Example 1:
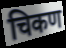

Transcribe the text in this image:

चिकण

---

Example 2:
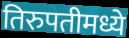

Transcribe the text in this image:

तिरुपतीमध्ये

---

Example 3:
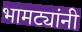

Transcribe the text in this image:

भामट्यांनी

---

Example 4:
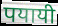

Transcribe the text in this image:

पयायी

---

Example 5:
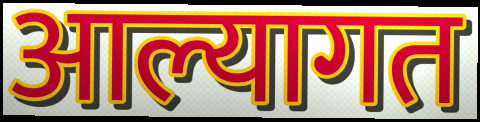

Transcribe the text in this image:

आल्यागत